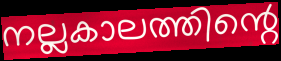
നല്ലകാലത്തിന്റെ